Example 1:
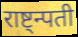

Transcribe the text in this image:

राष्ट्न्पती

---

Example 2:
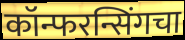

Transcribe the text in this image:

कॉन्फरन्सिंगचा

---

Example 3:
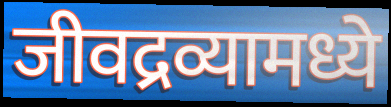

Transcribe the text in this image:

जीवद्रव्यामध्ये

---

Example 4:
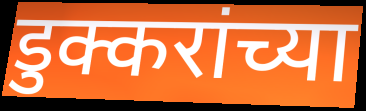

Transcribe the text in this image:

डुक्करांच्या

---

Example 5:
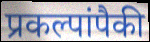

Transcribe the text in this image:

प्रकल्पांपैकी